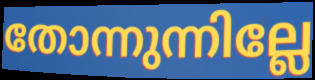
തോന്നുന്നില്ലേ